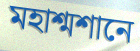
মহাশ্মশানে